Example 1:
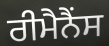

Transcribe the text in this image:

ਰੀਮੈਨੈਂਸ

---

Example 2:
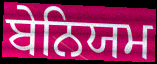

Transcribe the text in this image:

ਬੇਨਿਯਮ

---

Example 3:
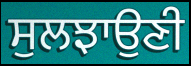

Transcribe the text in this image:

ਸੁਲਝਾਉਣੀ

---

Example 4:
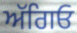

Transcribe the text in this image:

ਅੱਗਿਓ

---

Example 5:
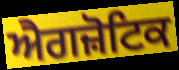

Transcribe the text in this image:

ਐਗਜ਼ੋਟਿਕ